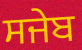
ਸਜੇਬ